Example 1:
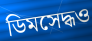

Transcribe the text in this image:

ডিমসেদ্ধও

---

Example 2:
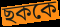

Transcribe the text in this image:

ছককে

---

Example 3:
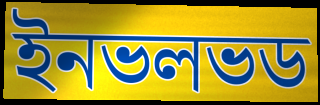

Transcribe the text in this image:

ইনভলভড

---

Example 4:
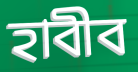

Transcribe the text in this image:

হাবীব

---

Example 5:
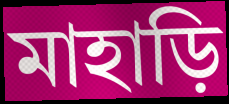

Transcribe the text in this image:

মাহাড়ি